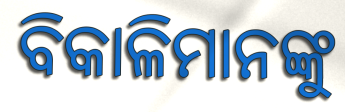
ବିକାଳିମାନଙ୍କୁ